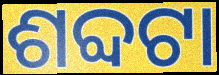
ଶବ୍ଦଟା